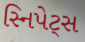
સ્નિપેટ્સ